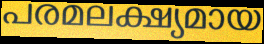
പരമലക്ഷ്യമായ